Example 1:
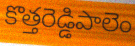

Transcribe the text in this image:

కొత్తరెడ్డిపాలెం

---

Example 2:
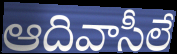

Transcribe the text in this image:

ఆదివాసీలే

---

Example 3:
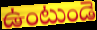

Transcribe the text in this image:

ఉంటుండె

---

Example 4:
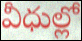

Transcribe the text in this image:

వీధుల్లో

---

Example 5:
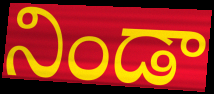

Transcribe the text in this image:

నిండా